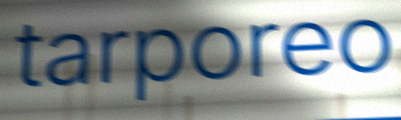
tarporeo